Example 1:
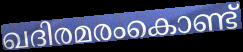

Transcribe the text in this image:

ഖദിരമരംകൊണ്ട്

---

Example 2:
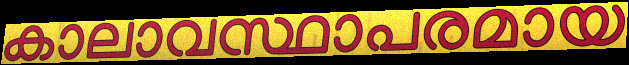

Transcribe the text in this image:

കാലാവസ്ഥാപരമായ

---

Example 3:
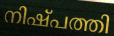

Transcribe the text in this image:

നിഷ്പത്തി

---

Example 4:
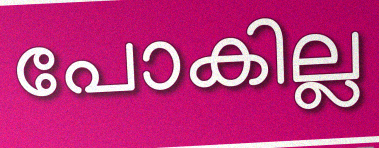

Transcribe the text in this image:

പോകില്ല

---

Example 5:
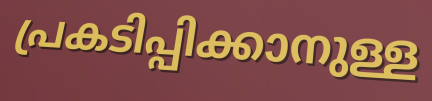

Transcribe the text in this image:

പ്രകടിപ്പിക്കാനുള്ള